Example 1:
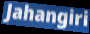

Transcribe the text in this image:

Jahangiri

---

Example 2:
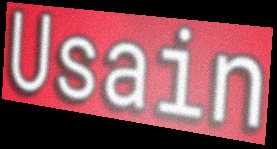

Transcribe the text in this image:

Usain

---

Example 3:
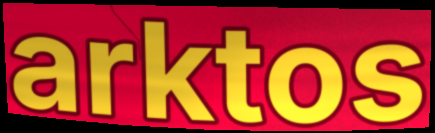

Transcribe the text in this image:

arktos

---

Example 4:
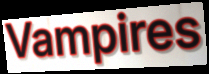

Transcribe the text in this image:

Vampires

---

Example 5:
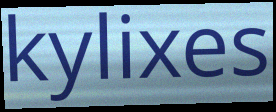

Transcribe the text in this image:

kylixes